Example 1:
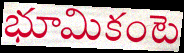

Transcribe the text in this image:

భూమికంటె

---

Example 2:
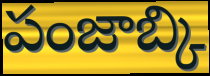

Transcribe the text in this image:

పంజాబ్కి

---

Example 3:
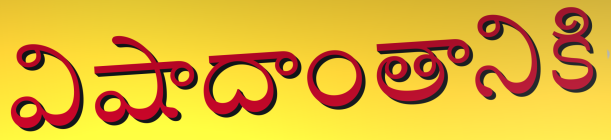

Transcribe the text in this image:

విషాదాంతానికి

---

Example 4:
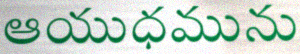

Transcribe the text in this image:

ఆయుధమును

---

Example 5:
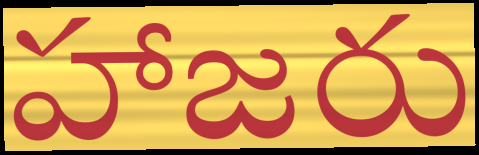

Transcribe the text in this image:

హాజరు